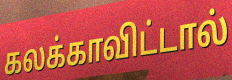
கலக்காவிட்டால்